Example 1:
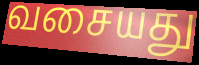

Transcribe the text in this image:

வசையது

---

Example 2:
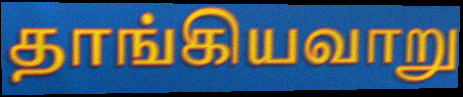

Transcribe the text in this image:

தாங்கியவாறு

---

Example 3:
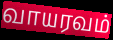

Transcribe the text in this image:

வாயரவம்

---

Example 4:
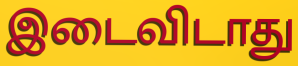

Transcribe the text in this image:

இடைவிடாது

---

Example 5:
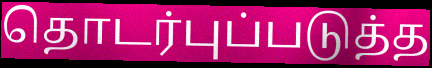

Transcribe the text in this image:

தொடர்புப்படுத்த